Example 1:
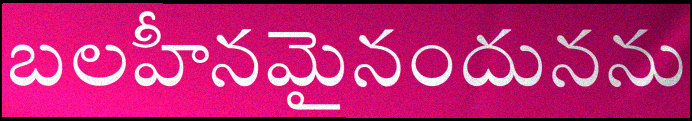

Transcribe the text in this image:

బలహీనమైనందునను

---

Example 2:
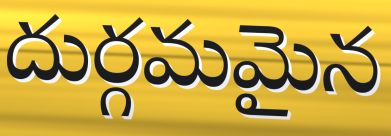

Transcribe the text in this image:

దుర్గమమైన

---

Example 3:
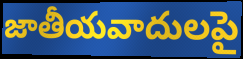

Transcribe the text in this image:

జాతీయవాదులపై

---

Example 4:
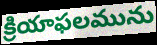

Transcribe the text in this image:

క్రియాఫలమును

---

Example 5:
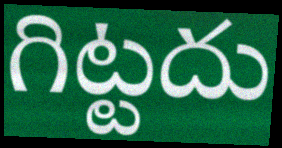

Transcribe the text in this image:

గిట్టదు